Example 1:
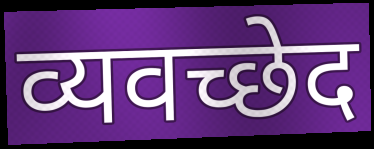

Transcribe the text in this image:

व्यवच्छेद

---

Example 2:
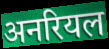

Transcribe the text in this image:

अनरियल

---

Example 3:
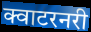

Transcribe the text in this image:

क्वाटरनरी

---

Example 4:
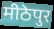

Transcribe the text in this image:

मीठेपुर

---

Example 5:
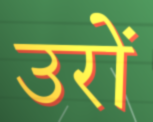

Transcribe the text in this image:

उरों